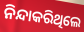
ନିନ୍ଦାକରିଥିଲେ